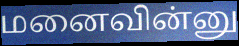
மனைவின்னு